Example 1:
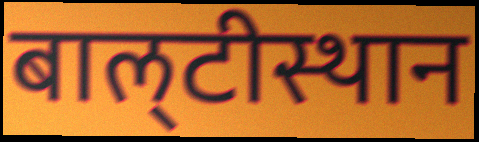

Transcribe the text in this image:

बाल्टीस्थान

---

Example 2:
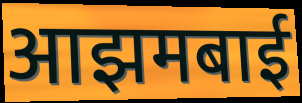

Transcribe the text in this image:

आझमबाई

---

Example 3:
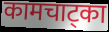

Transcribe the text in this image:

कामचाट्का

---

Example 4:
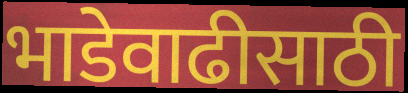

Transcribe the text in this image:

भाडेवाढीसाठी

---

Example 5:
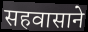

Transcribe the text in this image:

सहवासाने